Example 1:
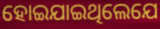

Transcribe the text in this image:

ହୋଇଯାଇଥିଲେଯେ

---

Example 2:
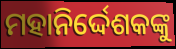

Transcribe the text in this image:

ମହାନିର୍ଦ୍ଦେଶକଙ୍କୁ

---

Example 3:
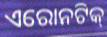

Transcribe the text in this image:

ଏରୋନଟିକ୍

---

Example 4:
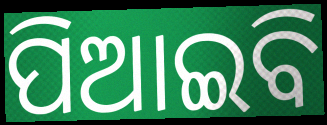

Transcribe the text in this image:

ପିଆଇବି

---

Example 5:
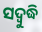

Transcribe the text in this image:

ସଦ୍ବୁଦ୍ଧି